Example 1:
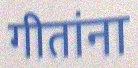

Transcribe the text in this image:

गीतांना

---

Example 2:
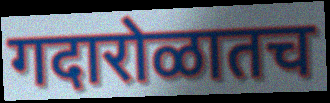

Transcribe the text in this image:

गदारोळातच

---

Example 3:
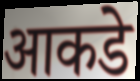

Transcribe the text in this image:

आकडे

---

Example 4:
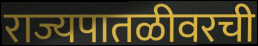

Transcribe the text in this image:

राज्यपातळीवरची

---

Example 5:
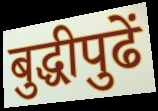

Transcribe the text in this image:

बुद्धीपुढें